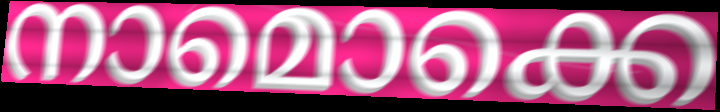
നാമൊക്കെ